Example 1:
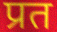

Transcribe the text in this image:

प्रत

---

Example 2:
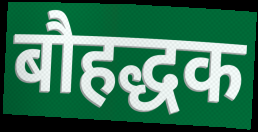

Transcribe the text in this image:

बौहद्धक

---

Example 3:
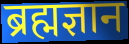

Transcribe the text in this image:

ब्रह्मज्ञान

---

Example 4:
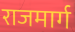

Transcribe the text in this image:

राजमार्ग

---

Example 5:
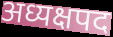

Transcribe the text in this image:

अध्यक्षपद